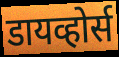
डायव्होर्स